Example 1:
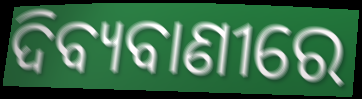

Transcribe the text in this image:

ଦିବ୍ୟବାଣୀରେ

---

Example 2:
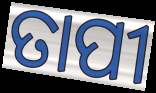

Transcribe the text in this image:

ତାପୀ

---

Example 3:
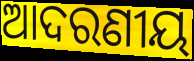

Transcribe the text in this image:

ଆଦରଣୀୟ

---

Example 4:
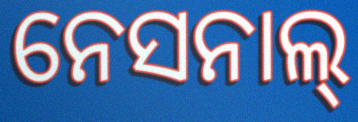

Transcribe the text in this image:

ନେସନାଲ୍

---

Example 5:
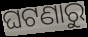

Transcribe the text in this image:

ଘଟଣାରୁ